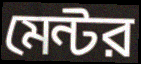
মেন্টর